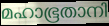
മഹാഭൂതാനി